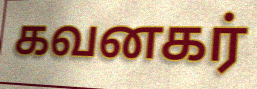
கவனகர்